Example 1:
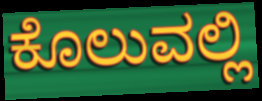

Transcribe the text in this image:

ಕೊಲುವಲ್ಲಿ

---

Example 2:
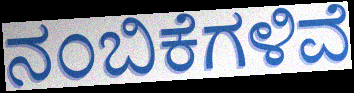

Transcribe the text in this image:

ನಂಬಿಕೆಗಳಿವೆ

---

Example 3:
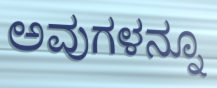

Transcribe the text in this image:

ಅವುಗಳನ್ನೂ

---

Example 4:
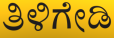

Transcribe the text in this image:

ತಿಳಿಗೇಡಿ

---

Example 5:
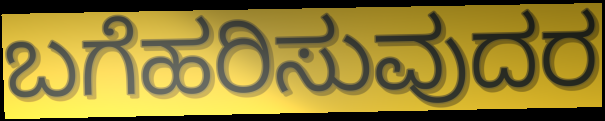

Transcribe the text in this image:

ಬಗೆಹರಿಸುವುದರ